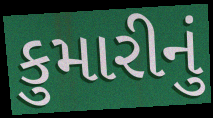
કુમારીનું